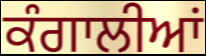
ਕੰਗਾਲੀਆਂ